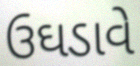
ઉઘડાવે